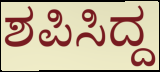
ಶಪಿಸಿದ್ದ